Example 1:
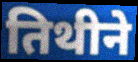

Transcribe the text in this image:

तिथीने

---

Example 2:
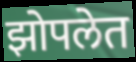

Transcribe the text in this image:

झोपलेत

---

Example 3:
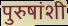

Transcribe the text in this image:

पुरुषांशी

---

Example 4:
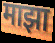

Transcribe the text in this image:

माझा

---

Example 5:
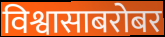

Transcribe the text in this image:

विश्वासाबरोबर